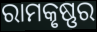
ରାମକୃଷ୍ଣର